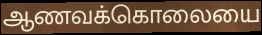
ஆணவக்கொலையை